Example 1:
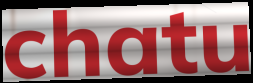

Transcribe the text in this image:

chatu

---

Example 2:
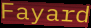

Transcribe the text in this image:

Fayard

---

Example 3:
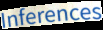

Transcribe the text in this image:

Inferences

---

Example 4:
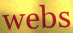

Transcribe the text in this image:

webs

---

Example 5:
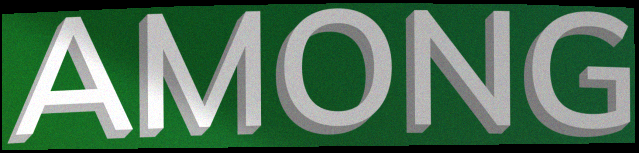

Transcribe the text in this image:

AMONG